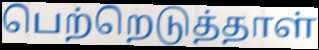
பெற்றெடுத்தாள்